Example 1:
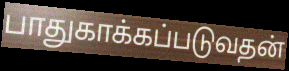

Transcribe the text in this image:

பாதுகாக்கப்படுவதன்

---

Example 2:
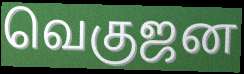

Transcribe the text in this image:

வெகுஜன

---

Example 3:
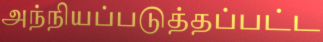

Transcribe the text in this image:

அந்நியப்படுத்தப்பட்ட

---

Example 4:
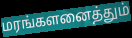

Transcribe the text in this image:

மரங்களனைத்தும்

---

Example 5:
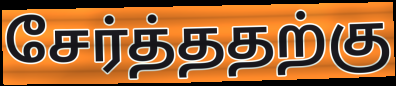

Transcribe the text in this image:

சேர்த்ததற்கு